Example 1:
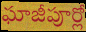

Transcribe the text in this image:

ఘాజీపూర్లో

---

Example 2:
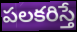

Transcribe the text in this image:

పలకరిస్తే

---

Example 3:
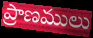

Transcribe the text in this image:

ప్రాణములు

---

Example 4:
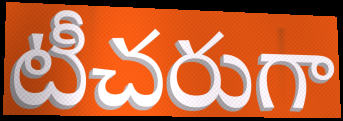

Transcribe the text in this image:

టీచరుగా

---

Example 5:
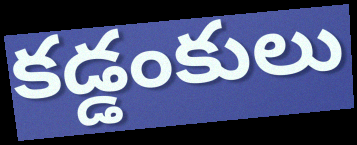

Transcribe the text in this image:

కడ్డంకులు